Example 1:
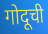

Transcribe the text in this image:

गोदूची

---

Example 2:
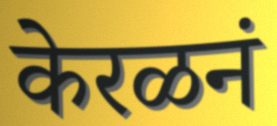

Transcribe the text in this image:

केरळनं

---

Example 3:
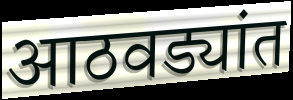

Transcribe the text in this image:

आठवड्यांत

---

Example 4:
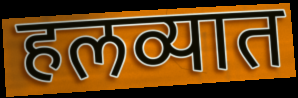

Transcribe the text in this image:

हलव्यात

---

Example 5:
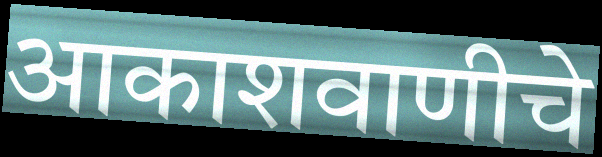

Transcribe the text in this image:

आकाशवाणीचे